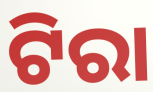
ଟିରା